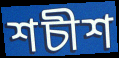
শচীশ